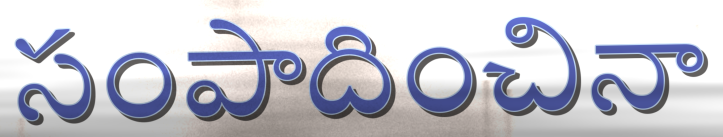
సంపాదించినా